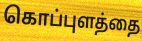
கொப்புளத்தை